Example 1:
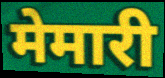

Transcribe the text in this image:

मेमारी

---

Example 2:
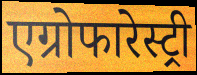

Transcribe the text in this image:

एग्रोफारेस्ट्री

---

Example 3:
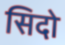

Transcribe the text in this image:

सिदो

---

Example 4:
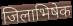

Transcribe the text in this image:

जिलाभिषेक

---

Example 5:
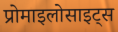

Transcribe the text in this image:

प्रोमाइलोसाइट्स